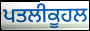
ਪਤਲੀਕੂਹਲ